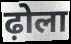
ढ़ोला